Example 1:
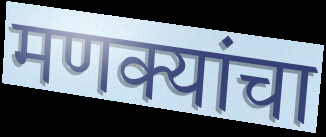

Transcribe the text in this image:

मणक्यांचा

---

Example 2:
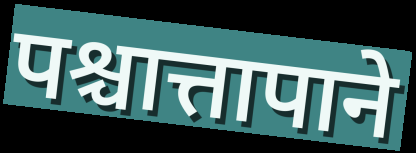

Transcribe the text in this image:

पश्चात्तापाने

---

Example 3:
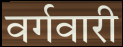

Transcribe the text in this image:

वर्गवारी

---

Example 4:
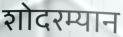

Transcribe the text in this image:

शोदरम्यान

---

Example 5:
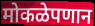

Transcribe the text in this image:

मोकळेपणान